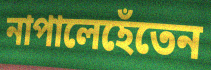
নাপালেহেঁতেন